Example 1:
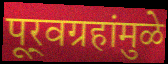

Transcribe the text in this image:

पूर्वग्रहांमुळे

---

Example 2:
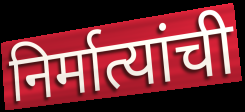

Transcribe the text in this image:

निर्मात्यांची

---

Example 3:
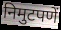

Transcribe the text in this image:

निमुटपणें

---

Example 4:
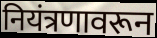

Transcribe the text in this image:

नियंत्रणावरून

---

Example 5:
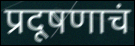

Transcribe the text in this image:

प्रदूषणाचं